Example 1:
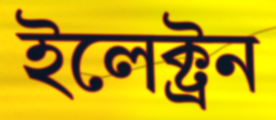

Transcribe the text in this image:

ইলেক্ট্ৰন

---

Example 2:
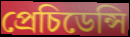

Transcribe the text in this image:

প্ৰেচিডেন্সি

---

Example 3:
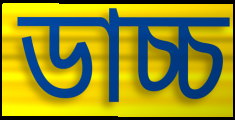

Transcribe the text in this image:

ডাচ্চ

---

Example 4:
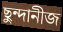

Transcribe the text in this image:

ছুন্দানীজ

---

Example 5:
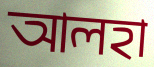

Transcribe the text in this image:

আলহা